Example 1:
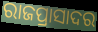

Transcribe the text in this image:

ରାଜପ୍ରାସାଦର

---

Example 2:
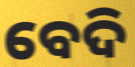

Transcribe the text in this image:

ବେଦି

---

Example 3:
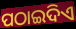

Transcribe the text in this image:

ପଠାଇଦିଏ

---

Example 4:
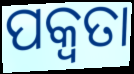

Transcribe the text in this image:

ପକ୍ୱତା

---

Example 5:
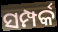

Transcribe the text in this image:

ସମ୍ପର୍କ